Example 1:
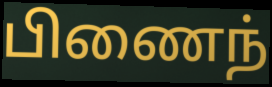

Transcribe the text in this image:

பிணைந்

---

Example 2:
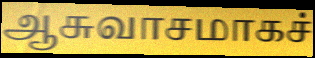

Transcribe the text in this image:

ஆசுவாசமாகச்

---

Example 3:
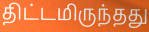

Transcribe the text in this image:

திட்டமிருந்தது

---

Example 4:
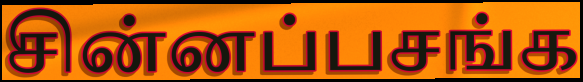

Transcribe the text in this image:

சின்னப்பசங்க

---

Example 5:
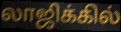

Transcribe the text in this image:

லாஜிக்கில்